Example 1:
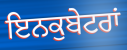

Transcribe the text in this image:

ਇਨਕੁਬੇਟਰਾਂ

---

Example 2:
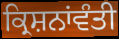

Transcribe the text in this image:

ਕ੍ਰਿਸ਼ਨਾਂਵੰਤੀ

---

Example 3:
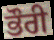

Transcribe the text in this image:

ਭੌਰੀ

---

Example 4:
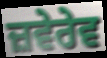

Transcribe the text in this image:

ਜ਼ਵੇਰੇਵ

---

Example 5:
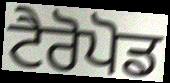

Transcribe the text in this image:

ਟੈਰੋਪੋਡ